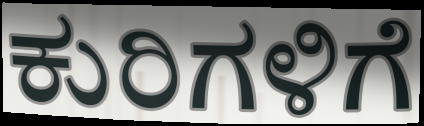
ಕುರಿಗಳಿಗೆ